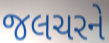
જલચરને